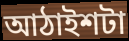
আঠাইশটা